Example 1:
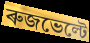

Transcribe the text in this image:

ৰুজভেল্টে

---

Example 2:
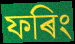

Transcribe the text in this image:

ফৰিং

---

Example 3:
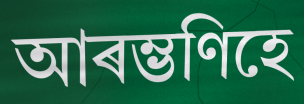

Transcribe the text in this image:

আৰম্ভণিহে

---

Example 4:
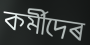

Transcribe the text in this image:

কৰ্মীদেৰ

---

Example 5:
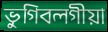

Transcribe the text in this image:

ভুগিবলগীয়া